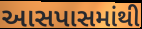
આસપાસમાંથી